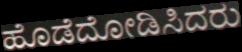
ಹೊಡೆದೋಡಿಸಿದರು